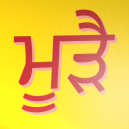
ਮੂੜੈ